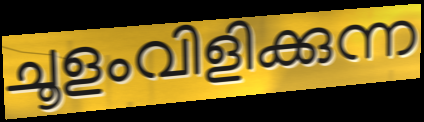
ചൂളംവിളിക്കുന്ന